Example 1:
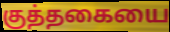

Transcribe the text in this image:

குத்தகையை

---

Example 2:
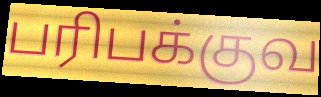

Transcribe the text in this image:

பரிபக்குவ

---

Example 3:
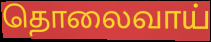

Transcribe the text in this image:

தொலைவாய்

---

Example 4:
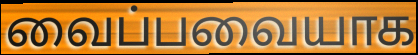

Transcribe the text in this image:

வைப்பவையாக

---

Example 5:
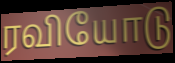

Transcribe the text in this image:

ரவியோடு